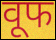
वूफ